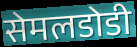
सेमलडोडी